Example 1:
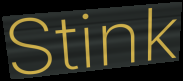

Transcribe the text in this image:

Stink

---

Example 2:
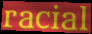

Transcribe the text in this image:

racial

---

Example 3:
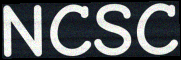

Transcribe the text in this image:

NCSC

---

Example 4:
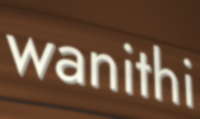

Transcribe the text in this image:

wanithi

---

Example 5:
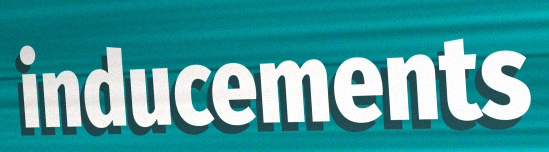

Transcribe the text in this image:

inducements